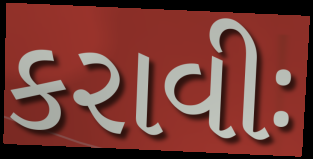
કરાવીઃ